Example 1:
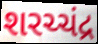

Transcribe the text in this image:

શરચ્ચંદ્ર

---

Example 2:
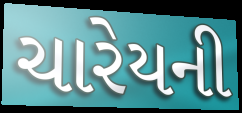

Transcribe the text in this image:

ચારેયની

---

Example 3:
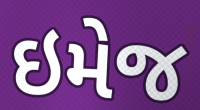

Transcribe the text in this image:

ઇમેજ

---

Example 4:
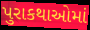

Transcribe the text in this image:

પુરાકથાઓમાં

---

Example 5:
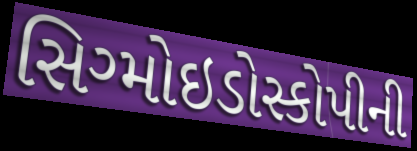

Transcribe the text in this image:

સિગ્મોઇડોસ્કોપીની